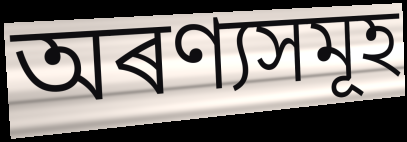
অৰণ্যসমূহ